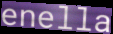
enella